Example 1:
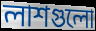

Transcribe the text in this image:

লাশগুলো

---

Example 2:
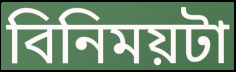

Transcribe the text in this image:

বিনিময়টা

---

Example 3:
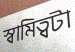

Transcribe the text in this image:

স্বামিত্বটা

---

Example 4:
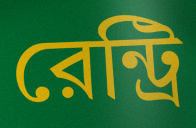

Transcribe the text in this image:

রেন্ট্রি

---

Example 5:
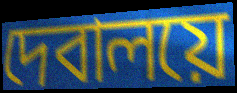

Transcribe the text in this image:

দেবালয়ে